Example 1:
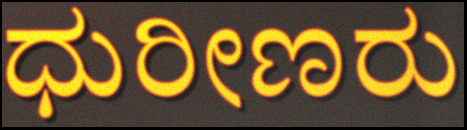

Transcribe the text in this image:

ಧುರೀಣರು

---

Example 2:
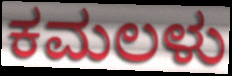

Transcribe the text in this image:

ಕಮಲಳು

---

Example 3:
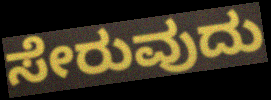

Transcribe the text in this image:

ಸೇರುವುದು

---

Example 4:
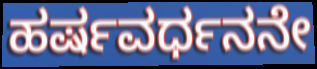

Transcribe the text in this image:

ಹರ್ಷವರ್ಧನನೇ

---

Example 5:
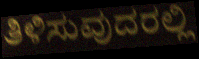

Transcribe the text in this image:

ತಿಳಿಸುವುದರಲ್ಲಿ